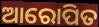
ଆରୋପିତ